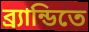
ব্র্যান্ডিতে